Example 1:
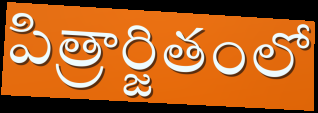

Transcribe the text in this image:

పిత్రార్జితంలో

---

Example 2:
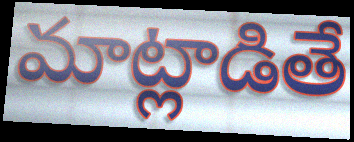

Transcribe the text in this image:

మాట్లాడితే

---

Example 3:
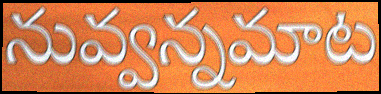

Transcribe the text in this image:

నువ్వన్నమాట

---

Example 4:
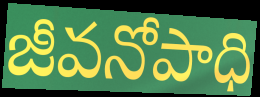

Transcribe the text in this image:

జీవనోపాధి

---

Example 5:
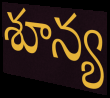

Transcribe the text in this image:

శూన్య